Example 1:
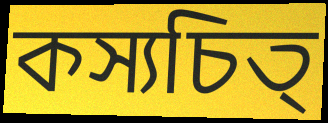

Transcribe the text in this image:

কস্যচিত্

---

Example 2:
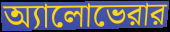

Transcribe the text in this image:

অ্যালোভেরার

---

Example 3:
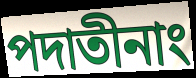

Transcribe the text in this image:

পদাতীনাং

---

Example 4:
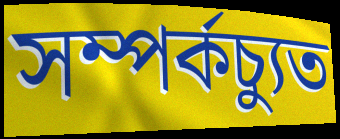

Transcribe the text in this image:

সম্পর্কচ্যুত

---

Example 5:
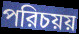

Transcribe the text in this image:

পরিচয়য়